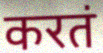
करतं